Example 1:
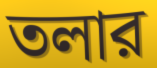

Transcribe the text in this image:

তলার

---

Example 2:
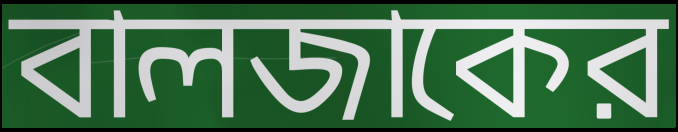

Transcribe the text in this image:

বালজাকের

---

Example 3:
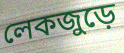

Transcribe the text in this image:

লেকজুড়ে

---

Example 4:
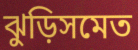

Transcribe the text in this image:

ঝুড়িসমেত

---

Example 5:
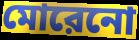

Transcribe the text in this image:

মোরেনো